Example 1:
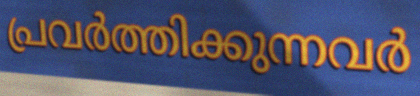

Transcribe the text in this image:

പ്രവർത്തിക്കുന്നവർ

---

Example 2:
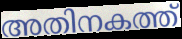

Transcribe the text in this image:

അതിനകത്ത്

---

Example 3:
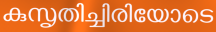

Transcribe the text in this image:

കുസൃതിച്ചിരിയോടെ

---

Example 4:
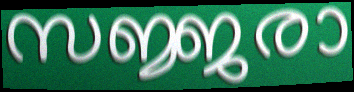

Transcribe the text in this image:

സജ്ജരാ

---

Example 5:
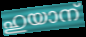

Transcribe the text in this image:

ഹുയാന്